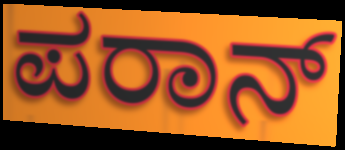
ಪರಾನ್